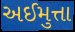
અઈમુત્તા